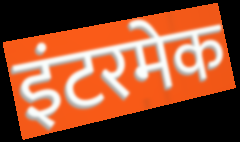
इंटरमेक